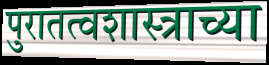
पुरातत्वशास्त्राच्या